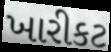
ખારીકટ